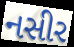
નસીર